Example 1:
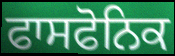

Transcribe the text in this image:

ਫਾਸਫੋਨਿਕ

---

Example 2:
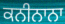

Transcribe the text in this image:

ਕਨੀਨਾਨਾ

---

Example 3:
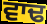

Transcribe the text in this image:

ਵਾਢ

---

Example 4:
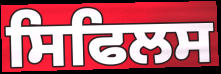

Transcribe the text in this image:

ਸਿਫਿਲਸ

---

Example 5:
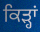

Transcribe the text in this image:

ਕਿੜ੍ਹਾਂ